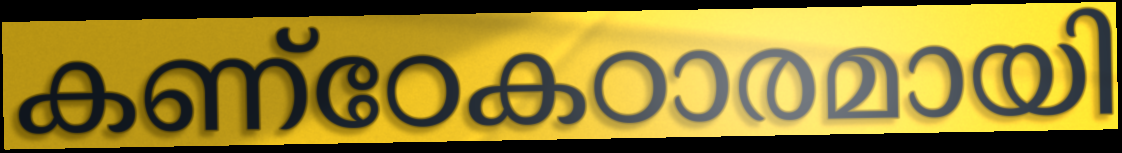
കണ്ഠേകഠാരമായി